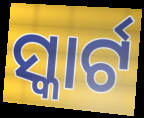
ସ୍କାର୍ଟ